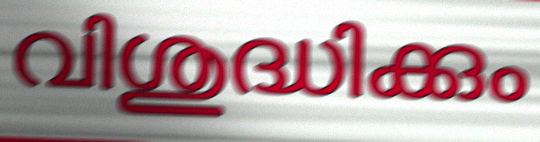
വിശുദ്ധിക്കും